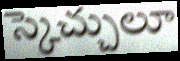
స్కెచ్చులూ